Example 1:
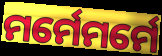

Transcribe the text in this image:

ମର୍ମେମର୍ମେ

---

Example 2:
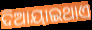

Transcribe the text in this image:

ଦିଆୟାଇଥାଏ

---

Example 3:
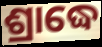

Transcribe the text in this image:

ଶ୍ରାଦ୍ଧେ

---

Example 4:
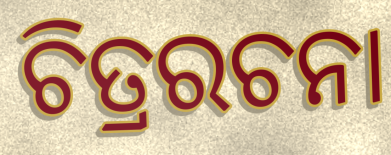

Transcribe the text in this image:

ଚିତ୍ରରଚନା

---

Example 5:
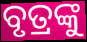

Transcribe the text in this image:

ବୃତ୍ରଙ୍କୁ